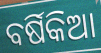
ବର୍ଷିକିଆ